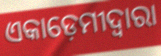
ଏକାଡ଼େମୀଦ୍ଵାରା